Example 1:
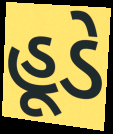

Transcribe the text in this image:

હૂડે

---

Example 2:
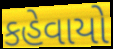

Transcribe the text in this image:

કહેવાયો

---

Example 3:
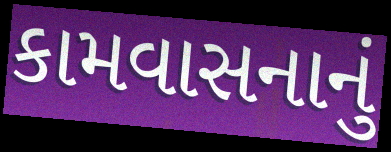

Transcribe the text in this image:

કામવાસનાનું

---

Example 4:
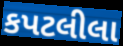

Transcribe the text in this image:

કપટલીલા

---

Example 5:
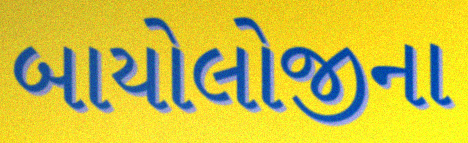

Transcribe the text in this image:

બાયોલોજીના